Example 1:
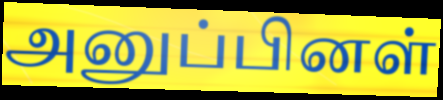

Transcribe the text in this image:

அனுப்பினள்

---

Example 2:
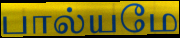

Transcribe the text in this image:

பால்யமே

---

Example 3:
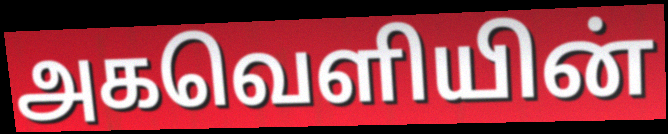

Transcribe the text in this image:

அகவெளியின்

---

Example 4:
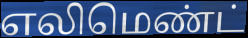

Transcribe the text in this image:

எலிமெண்ட்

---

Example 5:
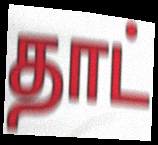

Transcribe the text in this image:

தாட்